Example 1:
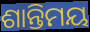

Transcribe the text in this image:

ଶାନ୍ତିମୟ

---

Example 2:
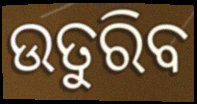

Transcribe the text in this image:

ଉତୁରିବ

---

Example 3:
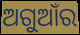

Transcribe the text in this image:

ଅଗୁଆଁର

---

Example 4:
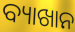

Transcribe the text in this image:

ବ୍ୟାଖାନ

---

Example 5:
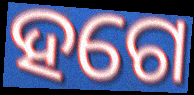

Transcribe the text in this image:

ହଗେ